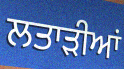
ਲਤਾੜੀਆਂ